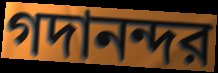
গদানন্দর